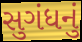
સુગંધનું